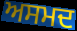
ਅਸਮਦ